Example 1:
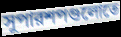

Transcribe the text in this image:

সুপারশপগুলোতে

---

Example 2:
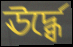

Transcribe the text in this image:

ঊর্দ্ধ্বে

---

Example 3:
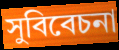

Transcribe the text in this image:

সুবিবেচনা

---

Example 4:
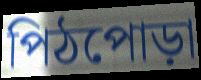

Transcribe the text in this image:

পিঠপোড়া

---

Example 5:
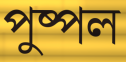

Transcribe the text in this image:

পুষ্পল